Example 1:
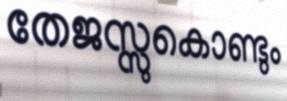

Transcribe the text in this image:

തേജസ്സുകൊണ്ടും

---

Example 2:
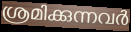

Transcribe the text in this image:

ശ്രമിക്കുന്നവർ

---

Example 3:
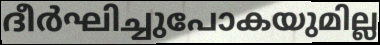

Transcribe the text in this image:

ദീർഘിച്ചുപോകയുമില്ല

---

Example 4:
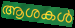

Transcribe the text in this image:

ആശകൾ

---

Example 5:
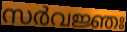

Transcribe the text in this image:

സർവജ്ഞഃ